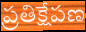
ప్రతిక్షేపణ